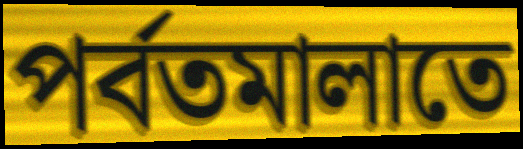
পর্বতমালাতে